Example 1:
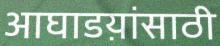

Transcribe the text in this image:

आघाडय़ांसाठी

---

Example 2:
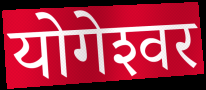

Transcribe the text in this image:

योगेश्‍वर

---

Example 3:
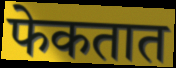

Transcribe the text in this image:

फेकतात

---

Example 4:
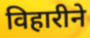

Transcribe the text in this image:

विहारीने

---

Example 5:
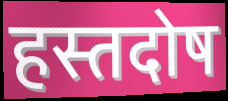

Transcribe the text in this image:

हस्तदोष